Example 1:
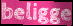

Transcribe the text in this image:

beligge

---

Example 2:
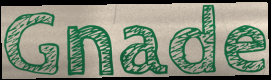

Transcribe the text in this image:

Gnade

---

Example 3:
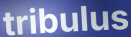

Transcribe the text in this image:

tribulus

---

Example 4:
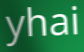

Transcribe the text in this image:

yhai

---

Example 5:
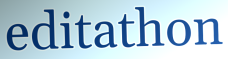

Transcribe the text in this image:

editathon